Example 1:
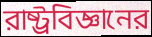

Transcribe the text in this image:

রাষ্ট্রবিজ্ঞানের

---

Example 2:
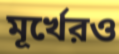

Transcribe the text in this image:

মূর্খেরও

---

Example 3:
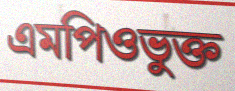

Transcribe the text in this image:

এমপিওভুক্ত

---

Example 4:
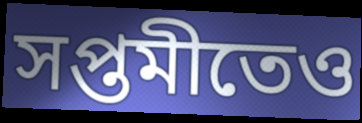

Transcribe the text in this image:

সপ্তমীতেও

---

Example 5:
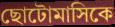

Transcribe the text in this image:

ছোটোমাসিকে